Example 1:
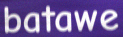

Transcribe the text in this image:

batawe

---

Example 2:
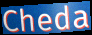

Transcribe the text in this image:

Cheda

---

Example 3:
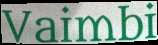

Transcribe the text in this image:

Vaimbi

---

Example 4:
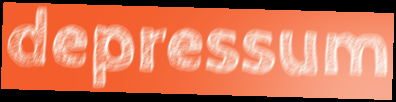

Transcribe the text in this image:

depressum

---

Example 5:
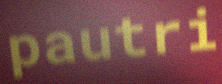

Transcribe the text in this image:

pautri